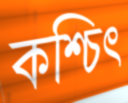
কশ্চিৎ